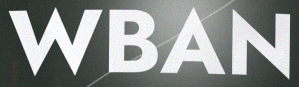
WBAN